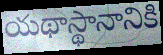
యథాస్థానానికి